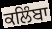
ਕਲਿੰਬਾ